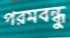
পরমবন্ধু